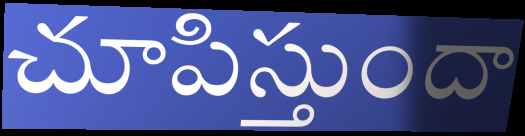
చూపిస్తుందా